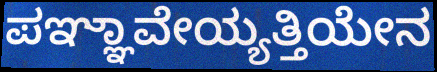
ಪಞ್ಞಾವೇಯ್ಯತ್ತಿಯೇನ